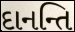
દાનન્તિ